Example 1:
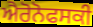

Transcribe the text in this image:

ਐਰੋਨੋਫਸਕੀ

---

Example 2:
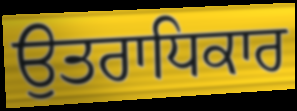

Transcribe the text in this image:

ਉਤਰਾਧਿਕਾਰ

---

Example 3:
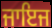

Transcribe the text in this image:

ਜਾਇਜ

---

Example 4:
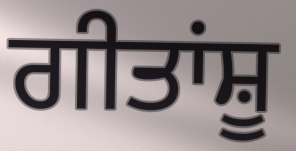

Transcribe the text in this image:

ਗੀਤਾਂਸ਼ੂ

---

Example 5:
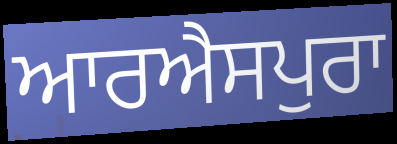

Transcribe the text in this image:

ਆਰਐਸਪੁਰਾ